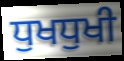
ਧੁਖਧੁਖੀ